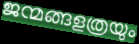
ജന്മങ്ങളത്രയും